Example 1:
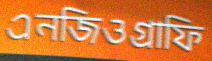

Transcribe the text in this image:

এনজিওগ্রাফি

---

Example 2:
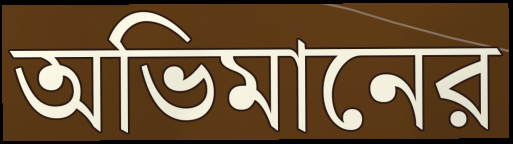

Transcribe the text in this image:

অভিমানের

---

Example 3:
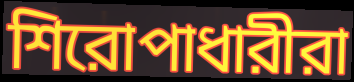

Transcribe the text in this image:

শিরোপাধারীরা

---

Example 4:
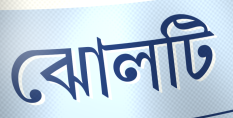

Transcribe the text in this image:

ঝোলটি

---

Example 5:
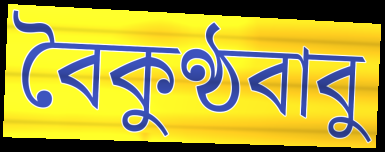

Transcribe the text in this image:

বৈকুণ্ঠবাবু